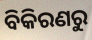
ବିକିରଣରୁ